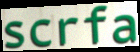
scrfa